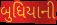
બુધિયાની